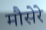
मौसेरे